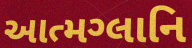
આત્મગ્લાનિ